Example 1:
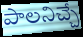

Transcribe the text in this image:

పాలనిచ్చే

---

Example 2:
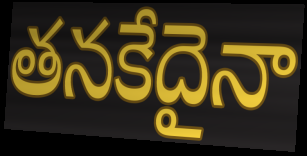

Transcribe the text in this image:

తనకేదైనా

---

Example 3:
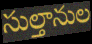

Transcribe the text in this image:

సుల్తానుల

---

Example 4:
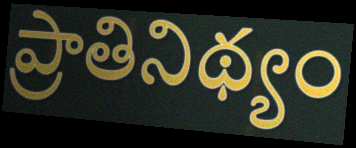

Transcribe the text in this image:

ప్రాతినిథ్యం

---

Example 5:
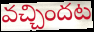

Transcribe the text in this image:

వచ్చిందట